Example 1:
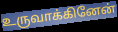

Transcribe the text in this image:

உருவாக்கினேன்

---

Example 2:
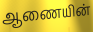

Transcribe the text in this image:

ஆணையின்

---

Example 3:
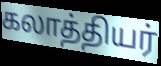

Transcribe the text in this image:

கலாத்தியர்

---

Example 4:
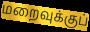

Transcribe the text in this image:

மறைவுக்குப்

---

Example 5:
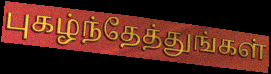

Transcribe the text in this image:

புகழ்ந்தேத்துங்கள்